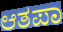
ಆತಪಾ